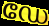
ഡേ